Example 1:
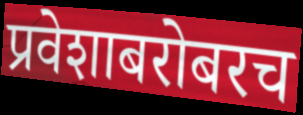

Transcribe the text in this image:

प्रवेशाबरोबरच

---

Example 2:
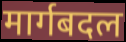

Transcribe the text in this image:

मार्गबदल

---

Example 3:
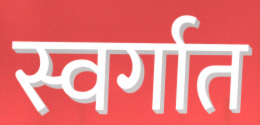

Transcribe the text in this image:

स्वर्गात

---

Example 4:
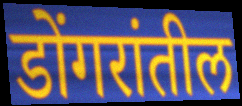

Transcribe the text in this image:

डोंगरांतील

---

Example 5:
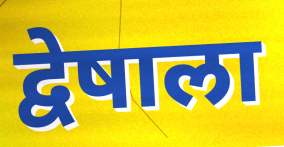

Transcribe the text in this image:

द्वेषाला